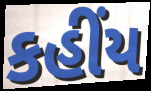
કહીંય